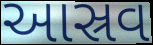
આસ્રવ